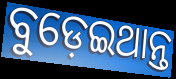
ବୁଡ଼େଇଥାନ୍ତ